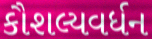
કૌશલ્યવર્ધન